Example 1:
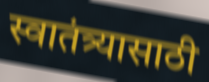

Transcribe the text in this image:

स्वातंत्र्यासाठी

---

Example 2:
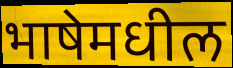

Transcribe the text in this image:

भाषेमधील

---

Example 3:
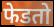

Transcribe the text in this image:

फेडतो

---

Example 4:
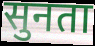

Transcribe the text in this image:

सुनता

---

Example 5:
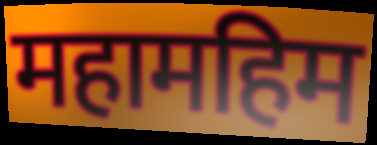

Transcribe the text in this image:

महामहिम